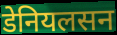
डेनियलसन